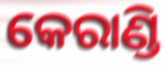
କେରାଣ୍ଡି